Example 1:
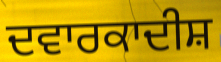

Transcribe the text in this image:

ਦਵਾਰਕਾਦੀਸ਼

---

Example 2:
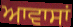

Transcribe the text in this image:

ਆਵਾਸਾਂ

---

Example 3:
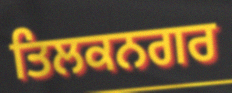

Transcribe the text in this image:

ਤਿਲਕਨਗਰ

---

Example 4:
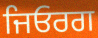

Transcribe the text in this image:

ਜਿਓਰਗ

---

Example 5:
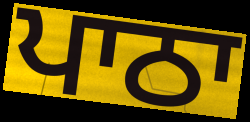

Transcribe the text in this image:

ਪਾਠਾ